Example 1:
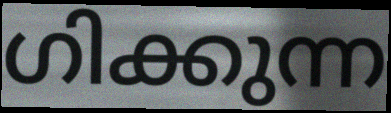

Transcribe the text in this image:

ഗിക്കുന്ന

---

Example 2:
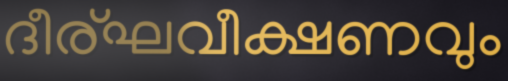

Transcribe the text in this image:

ദീര്ഘവീക്ഷണവും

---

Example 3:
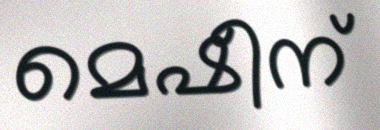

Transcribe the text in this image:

മെഷീന്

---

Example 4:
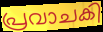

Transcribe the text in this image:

പ്രവാചകി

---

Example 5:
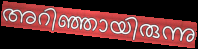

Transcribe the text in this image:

അറിഞ്ഞായിരുന്നു